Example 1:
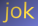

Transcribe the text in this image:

jok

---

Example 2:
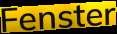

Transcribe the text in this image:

Fenster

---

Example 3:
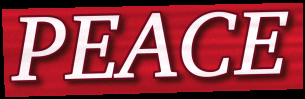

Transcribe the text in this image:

PEACE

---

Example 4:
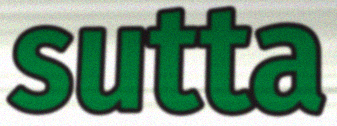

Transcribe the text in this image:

sutta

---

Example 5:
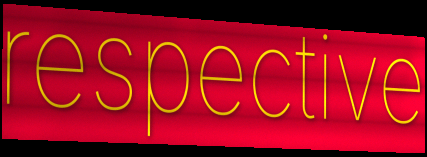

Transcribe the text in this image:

respective